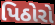
પિઠોરો